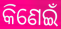
କିଣେଇଁ